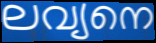
ലവ്യനെ